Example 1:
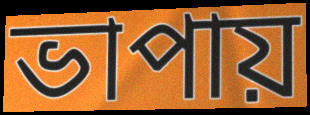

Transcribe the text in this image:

ভাপায়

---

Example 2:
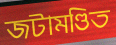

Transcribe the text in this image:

জটামণ্ডিত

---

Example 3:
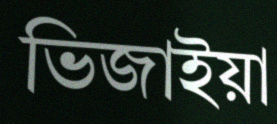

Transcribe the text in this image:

ভিজাইয়া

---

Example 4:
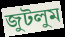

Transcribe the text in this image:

জুটলুম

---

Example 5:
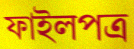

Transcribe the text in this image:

ফাইলপত্র